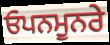
ਓਪਨਮੂਨਰੇ